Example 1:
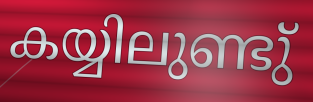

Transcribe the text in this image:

കയ്യിലുണ്ടു്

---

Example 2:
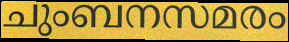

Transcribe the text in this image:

ചുംബനസമരം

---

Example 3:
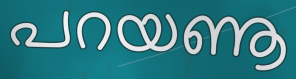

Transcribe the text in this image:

പറയണൂ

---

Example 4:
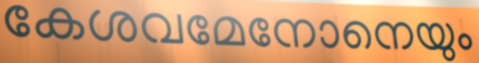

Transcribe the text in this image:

കേശവമേനോനെയും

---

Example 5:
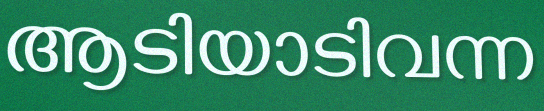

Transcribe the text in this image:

ആടിയാടിവന്ന